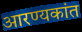
आरण्यकांत